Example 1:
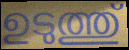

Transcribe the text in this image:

ഉടുത്തു്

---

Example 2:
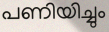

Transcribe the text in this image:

പണിയിച്ചും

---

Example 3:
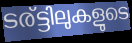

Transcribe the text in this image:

ടര്ട്ടിലുകളുടെ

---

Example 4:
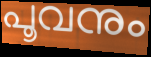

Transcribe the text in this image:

പൂവനും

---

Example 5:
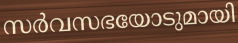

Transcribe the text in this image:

സർവസഭയോടുമായി